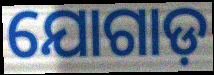
ଯୋଗାଡ଼